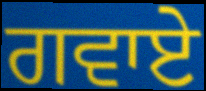
ਗਵਾਏ